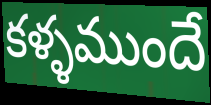
కళ్ళముందే